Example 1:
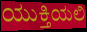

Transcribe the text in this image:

ಯುಕ್ತಿಯಲಿ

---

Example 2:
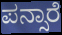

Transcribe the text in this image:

ಪನ್ಸಾರೆ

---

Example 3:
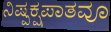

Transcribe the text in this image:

ನಿಷ್ಪಕ್ಷಪಾತವೂ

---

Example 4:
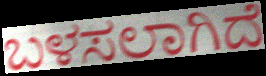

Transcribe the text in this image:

ಬಳಸಲಾಗಿದೆ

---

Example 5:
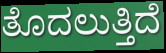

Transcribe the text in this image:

ತೊದಲುತ್ತಿದೆ